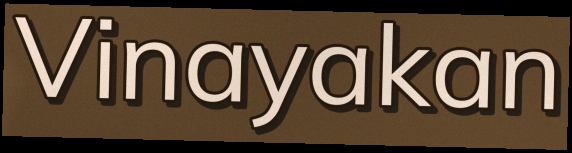
Vinayakan